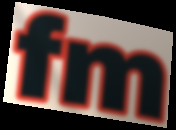
fm